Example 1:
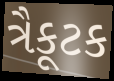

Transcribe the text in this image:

ત્રૈકૂટક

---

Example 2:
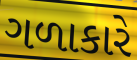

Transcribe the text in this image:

ગળાકારે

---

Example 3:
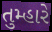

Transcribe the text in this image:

તુમ્હારે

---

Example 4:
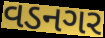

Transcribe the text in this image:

વડનગર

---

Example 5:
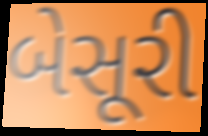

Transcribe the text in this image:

બેસૂરી